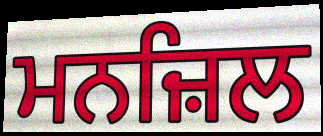
ਮਨਜ਼ਿਲ